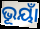
ଭୂୟାଁ